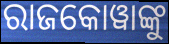
ରାଜକୋୱାଙ୍କୁ